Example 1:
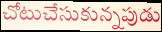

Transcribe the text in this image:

చోటుచేసుకున్నపుడు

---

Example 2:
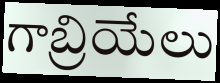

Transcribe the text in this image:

గాబ్రియేలు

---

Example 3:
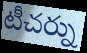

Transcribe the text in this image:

టీచర్ను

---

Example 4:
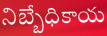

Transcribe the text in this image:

నిబ్బేధికాయ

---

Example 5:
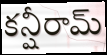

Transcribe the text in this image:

కన్షీరామ్